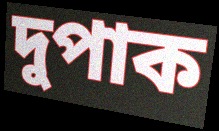
দুপাক